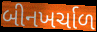
બીનખર્ચાળ